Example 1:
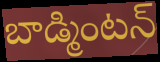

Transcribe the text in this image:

బాడ్మింటన్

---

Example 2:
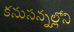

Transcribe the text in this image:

కనుసన్నల్లోని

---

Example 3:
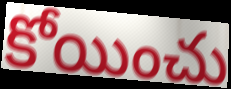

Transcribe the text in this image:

కోయించు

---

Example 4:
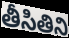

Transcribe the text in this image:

తీసితిని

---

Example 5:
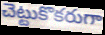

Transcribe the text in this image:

చెట్టుకొకరుగా